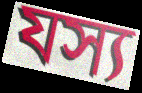
যস্য